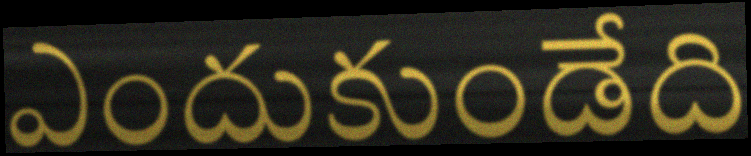
ఎందుకుండేది